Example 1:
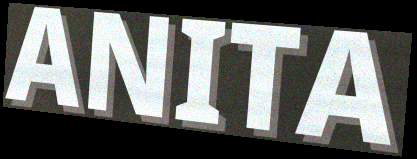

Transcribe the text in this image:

ANITA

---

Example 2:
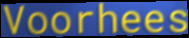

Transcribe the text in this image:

Voorhees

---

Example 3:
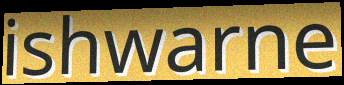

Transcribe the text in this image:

ishwarne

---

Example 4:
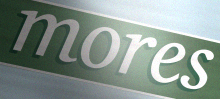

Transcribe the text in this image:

mores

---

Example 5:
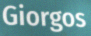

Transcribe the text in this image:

Giorgos